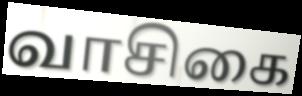
வாசிகை